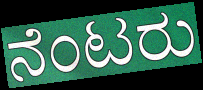
ನೆಂಟರು